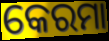
କେରମା